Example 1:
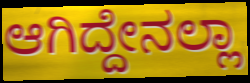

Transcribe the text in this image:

ಆಗಿದ್ದೇನಲ್ಲಾ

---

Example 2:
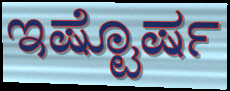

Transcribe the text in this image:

ಇಷ್ಟೊರ್ಷ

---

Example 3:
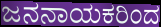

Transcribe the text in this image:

ಜನನಾಯಕರಿಂದ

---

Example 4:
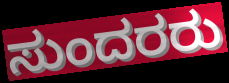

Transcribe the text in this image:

ಸುಂದರರು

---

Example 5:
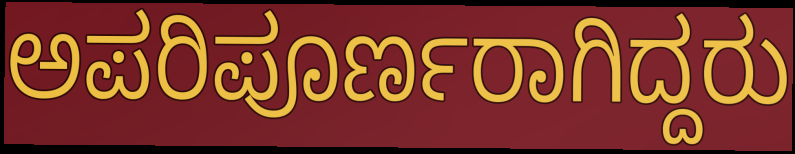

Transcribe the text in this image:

ಅಪರಿಪೂರ್ಣರಾಗಿದ್ದರು